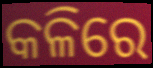
କଳିରେ